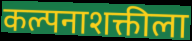
कल्पनाशक्तीला